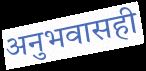
अनुभवासही